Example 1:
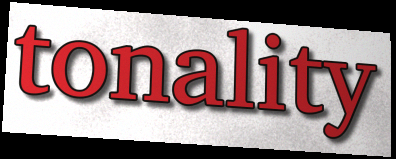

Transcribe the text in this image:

tonality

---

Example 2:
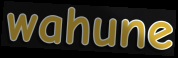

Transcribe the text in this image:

wahune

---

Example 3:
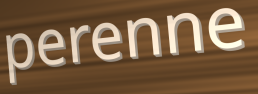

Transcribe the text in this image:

perenne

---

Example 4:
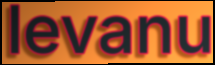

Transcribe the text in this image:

levanu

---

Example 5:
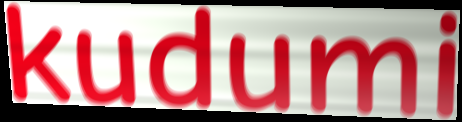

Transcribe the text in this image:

kudumi